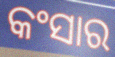
କଂସାର